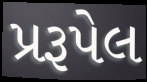
પ્રરૂપેલ